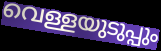
വെള്ളയുടുപ്പും